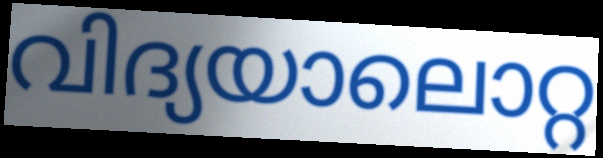
വിദ്യയാലൊറ്റ